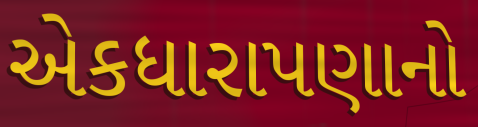
એકધારાપણાનો